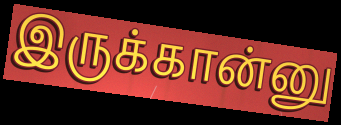
இருக்கான்னு